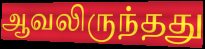
ஆவலிருந்தது